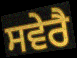
ਸਵੇਰੈ